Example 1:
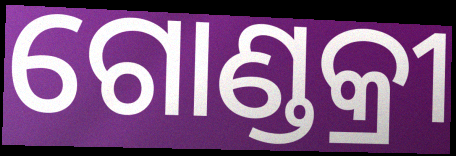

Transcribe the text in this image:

ଗୋଣ୍ଡକ୍ରୀ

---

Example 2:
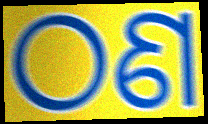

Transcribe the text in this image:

ଠଣ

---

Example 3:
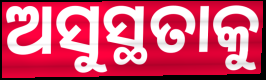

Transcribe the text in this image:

ଅସୁସ୍ଥତାକୁ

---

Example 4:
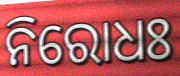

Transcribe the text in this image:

ନିରୋଧଃ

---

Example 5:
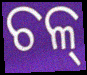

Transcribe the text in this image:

ଚଳ୍